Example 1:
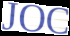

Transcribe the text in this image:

JOC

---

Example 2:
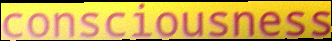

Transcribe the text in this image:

consciousness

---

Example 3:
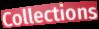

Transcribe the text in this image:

Collections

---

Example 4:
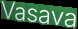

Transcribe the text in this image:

Vasava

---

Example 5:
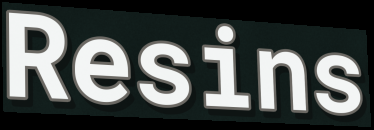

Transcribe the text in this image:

Resins